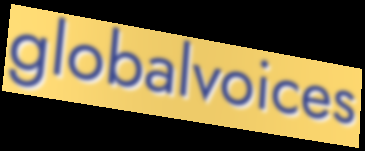
globalvoices